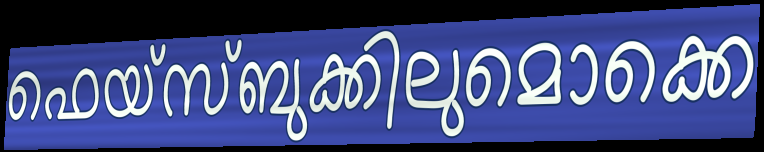
ഫെയ്സ്ബുക്കിലുമൊക്കെ